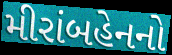
મીરાંબહેનનો